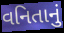
વનિતાનું